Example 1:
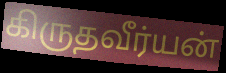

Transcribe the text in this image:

கிருதவீர்யன்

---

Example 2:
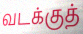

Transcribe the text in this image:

வடக்குத்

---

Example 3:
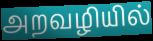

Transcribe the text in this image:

அறவழியில்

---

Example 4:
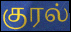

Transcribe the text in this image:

குரல்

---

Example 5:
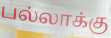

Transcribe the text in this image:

பல்லாக்கு